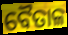
ବୈତାଳ